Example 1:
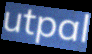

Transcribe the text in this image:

utpal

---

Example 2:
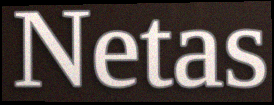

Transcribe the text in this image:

Netas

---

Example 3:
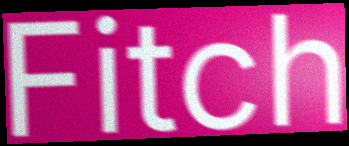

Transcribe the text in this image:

Fitch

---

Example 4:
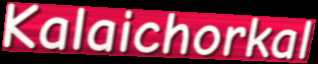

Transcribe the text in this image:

Kalaichorkal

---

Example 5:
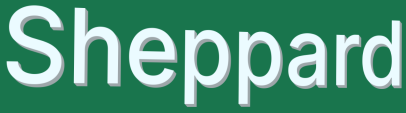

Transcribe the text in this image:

Sheppard